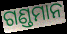
ଗଣ୍ଡମାନ